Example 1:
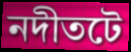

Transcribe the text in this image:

নদীতটে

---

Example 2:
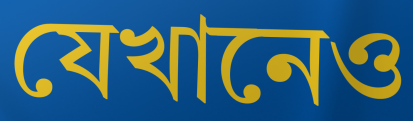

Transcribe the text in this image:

যেখানেও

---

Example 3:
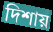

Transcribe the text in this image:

দিশায়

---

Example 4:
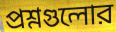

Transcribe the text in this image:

প্রশ্নগুলোর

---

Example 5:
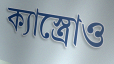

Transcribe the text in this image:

ক্যাস্ত্রোও